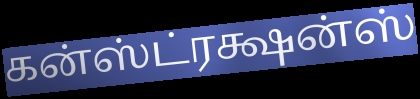
கன்ஸ்ட்ரக்ஷன்ஸ்